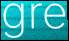
gre